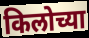
किलोच्या